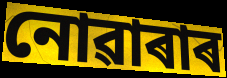
নোৱাৰাৰ